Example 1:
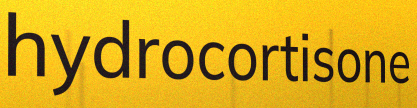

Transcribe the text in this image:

hydrocortisone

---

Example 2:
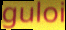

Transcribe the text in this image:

guloi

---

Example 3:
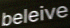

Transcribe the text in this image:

beleive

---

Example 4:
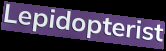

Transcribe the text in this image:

Lepidopterist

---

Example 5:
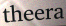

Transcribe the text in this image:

theera